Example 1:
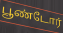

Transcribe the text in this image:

பூண்டோர்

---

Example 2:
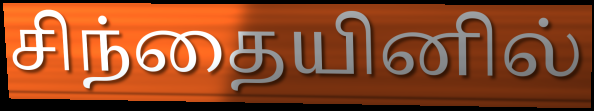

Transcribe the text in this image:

சிந்தையினில்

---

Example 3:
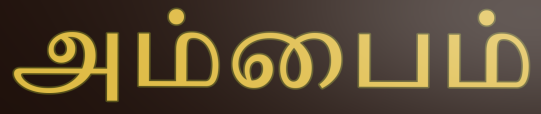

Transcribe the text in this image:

அம்பைம்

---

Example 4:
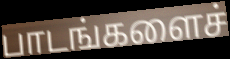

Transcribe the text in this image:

பாடங்களைச்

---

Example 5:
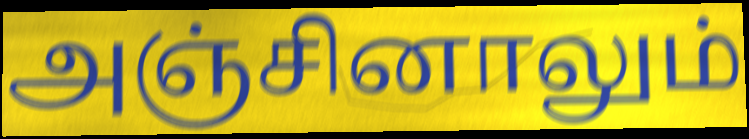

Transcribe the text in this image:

அஞ்சினாலும்